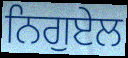
ਨਿਗੁਏਲ